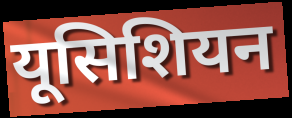
यूसिशियन